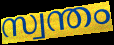
സ്വന്തം